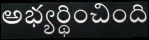
అభ్యర్థించింది